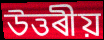
উত্তৰীয়